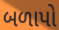
બળાપો